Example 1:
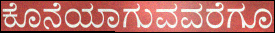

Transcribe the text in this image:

ಕೊನೆಯಾಗುವವರೆಗೂ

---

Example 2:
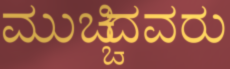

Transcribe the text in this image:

ಮುಚ್ಚಿದವರು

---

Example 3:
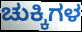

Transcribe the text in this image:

ಚುಕ್ಕಿಗಳ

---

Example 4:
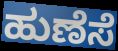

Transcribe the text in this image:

ಹುಣೆಸೆ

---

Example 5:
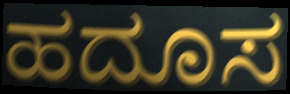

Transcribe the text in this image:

ಹದೂಸ